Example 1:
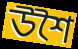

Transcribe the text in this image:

উশৈ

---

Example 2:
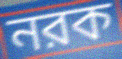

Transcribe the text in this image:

নরক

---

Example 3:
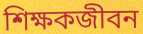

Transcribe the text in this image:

শিক্ষকজীবন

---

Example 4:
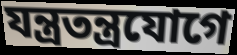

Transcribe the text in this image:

যন্ত্রতন্ত্রযোগে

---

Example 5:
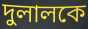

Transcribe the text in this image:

দুলালকে